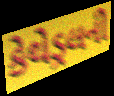
કેથેડ્રલની